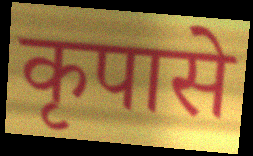
कृपासे